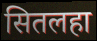
सितलहा